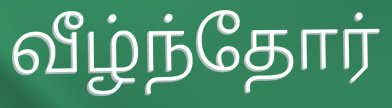
வீழ்ந்தோர்